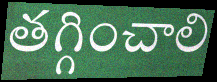
తగ్గించాలి